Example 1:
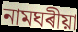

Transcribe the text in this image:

নামঘৰীয়া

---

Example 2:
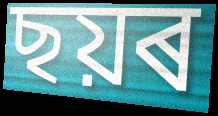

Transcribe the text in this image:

ছয়ৰ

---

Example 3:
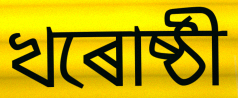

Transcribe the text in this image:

খৰোষ্ঠী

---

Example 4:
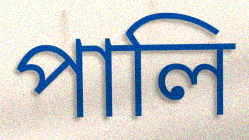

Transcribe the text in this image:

পালি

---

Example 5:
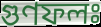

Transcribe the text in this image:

গুণফলঃ